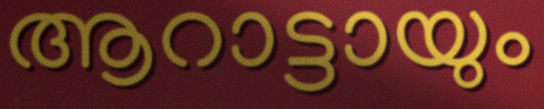
ആറാട്ടായും